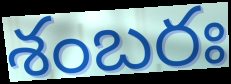
శంబరః